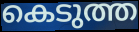
കെടുത്ത